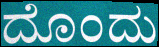
ದೊಂದು